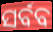
ସର୍ବବ